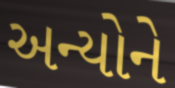
અન્યોને